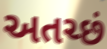
અતચ્છં